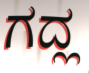
ಗದ್ಲ